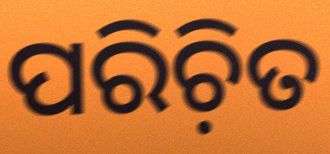
ପରିଚ଼ିତ